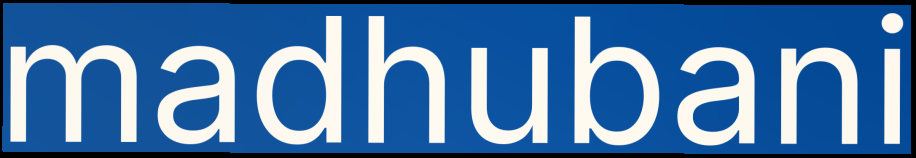
madhubani